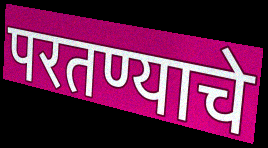
परतण्याचे